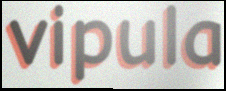
vipula